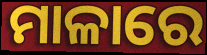
ମାଳାରେ